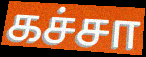
கச்சா